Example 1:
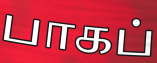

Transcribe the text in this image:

பாகப்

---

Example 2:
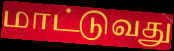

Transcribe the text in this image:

மாட்டுவது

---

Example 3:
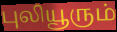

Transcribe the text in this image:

புலியூரும்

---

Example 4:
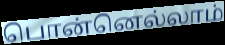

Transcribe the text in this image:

பொன்னெல்லாம்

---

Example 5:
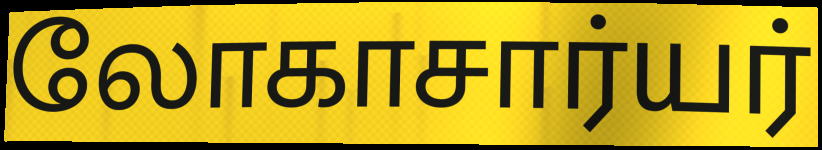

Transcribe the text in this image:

லோகாசார்யர்